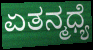
ಏತನ್ಮಧ್ಯೆ